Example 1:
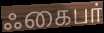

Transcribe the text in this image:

ஃகைபர்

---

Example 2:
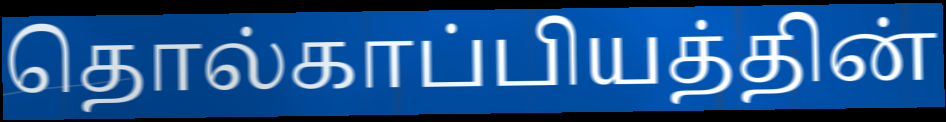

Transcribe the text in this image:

தொல்காப்பியத்தின்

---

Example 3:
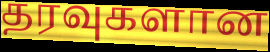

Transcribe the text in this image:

தரவுகளான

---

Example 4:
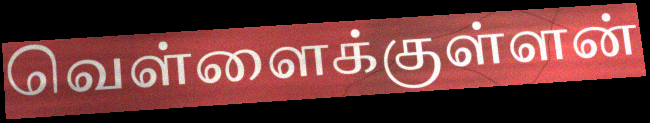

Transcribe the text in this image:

வெள்ளைக்குள்ளன்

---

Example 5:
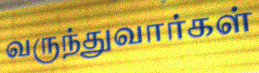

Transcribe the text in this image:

வருந்துவார்கள்